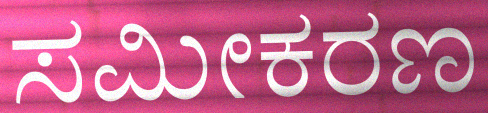
ಸಮೀಕರಣ